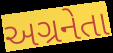
અગ્રનેતા